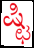
ಷ್ಟಿ